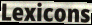
Lexicons